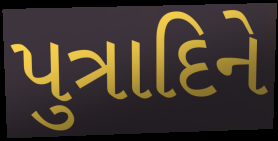
પુત્રાદિને